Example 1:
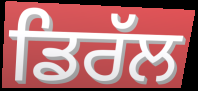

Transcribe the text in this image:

ਡਿਰੱਲ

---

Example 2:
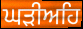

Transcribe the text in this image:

ਘੜੀਅਹਿ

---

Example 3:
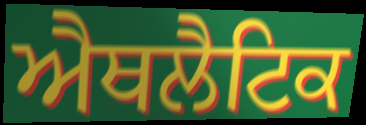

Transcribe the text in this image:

ਐਥਲੈਟਿਕ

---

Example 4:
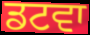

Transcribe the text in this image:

ਡਟਵਾ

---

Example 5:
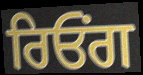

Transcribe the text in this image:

ਰਿਓਂਗ